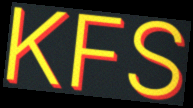
KFS